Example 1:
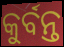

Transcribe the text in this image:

କୁର୍ବନ୍ତ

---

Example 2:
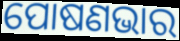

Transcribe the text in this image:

ପୋଷଣଭାର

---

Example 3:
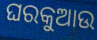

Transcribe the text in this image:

ଘରକୁଆଉ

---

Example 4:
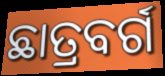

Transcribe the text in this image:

ଛାତ୍ରବର୍ଗ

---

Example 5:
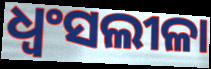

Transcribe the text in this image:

ଧ୍ୱଂସଲୀଳା